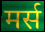
मर्स